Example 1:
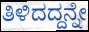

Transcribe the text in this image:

ತಿಳಿದದ್ದನ್ನೇ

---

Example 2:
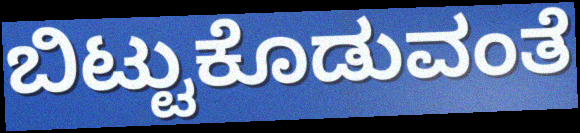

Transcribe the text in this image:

ಬಿಟ್ಟುಕೊಡುವಂತೆ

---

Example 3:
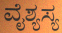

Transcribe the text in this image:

ವೈಶ್ಯಸ್ಯ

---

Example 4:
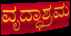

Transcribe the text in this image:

ವೃದ್ಧಾಶ್ರಮ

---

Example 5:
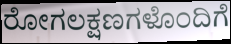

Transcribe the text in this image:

ರೋಗಲಕ್ಷಣಗಳೊಂದಿಗೆ